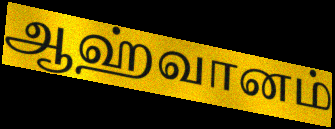
ஆஹ்வானம்